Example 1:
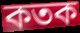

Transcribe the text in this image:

কতক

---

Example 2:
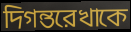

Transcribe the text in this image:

দিগন্তরেখাকে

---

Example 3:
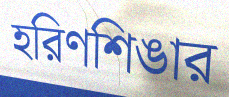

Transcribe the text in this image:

হরিণশিঙার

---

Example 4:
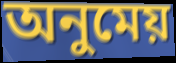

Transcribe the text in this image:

অনুমেয়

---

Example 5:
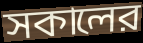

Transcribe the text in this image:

সকালের